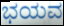
ಭಯವ